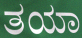
ತಯಾ